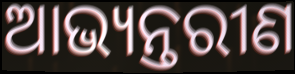
ଆଭ୍ୟନ୍ତରୀଣ